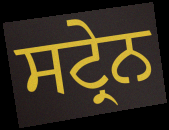
ਸਟ੍ਰੇਨ